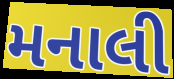
મનાલી